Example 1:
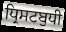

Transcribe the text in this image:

ਧ੍ਰਿਸਟਬੁਧੀ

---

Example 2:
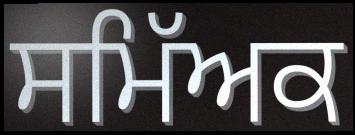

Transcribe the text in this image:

ਸਮਿੱਅਕ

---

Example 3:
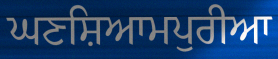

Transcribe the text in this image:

ਘਣਸ਼ਿਆਮਪੁਰੀਆ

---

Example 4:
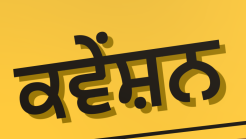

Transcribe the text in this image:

ਕਵੇਂਸ਼ਨ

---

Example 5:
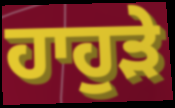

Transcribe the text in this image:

ਹਾਹੁੜੇ